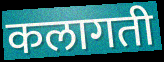
कलागती